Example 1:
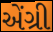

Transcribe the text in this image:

એંગ્રી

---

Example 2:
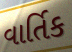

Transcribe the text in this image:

વાર્તિક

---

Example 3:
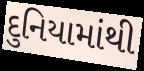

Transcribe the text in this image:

દુનિયામાંથી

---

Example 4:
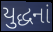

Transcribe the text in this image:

યુદ્ધનાં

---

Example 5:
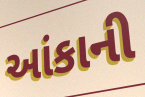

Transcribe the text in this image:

આંકાની